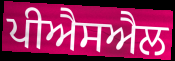
ਪੀਐਸਐਲ